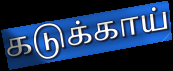
கடுக்காய்